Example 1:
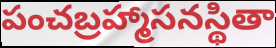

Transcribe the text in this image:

పంచబ్రహ్మాసనస్థితా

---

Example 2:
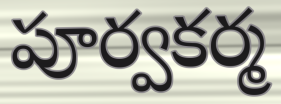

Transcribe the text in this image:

పూర్వకర్మ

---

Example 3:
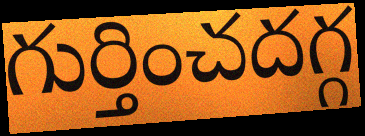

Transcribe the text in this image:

గుర్తించదగ్గ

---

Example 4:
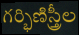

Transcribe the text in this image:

గర్భిణిస్త్రీల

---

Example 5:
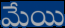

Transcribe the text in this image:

మేయి